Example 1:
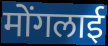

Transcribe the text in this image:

मोंगलाई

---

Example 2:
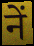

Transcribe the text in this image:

नें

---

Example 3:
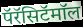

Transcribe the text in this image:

पॅरॅसिटॅमॉल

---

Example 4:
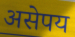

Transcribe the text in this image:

असेपय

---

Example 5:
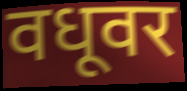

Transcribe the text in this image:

वधूवर